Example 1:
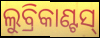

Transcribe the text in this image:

ଲୁବ୍ରିକାଣ୍ଟସ୍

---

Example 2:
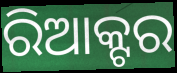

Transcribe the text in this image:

ରିଆକ୍ଟର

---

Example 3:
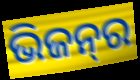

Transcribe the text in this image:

ଭିଜନ୍‌ର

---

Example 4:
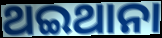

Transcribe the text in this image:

ଥଇଥାନା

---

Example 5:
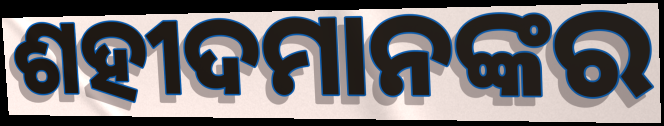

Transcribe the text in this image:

ଶହୀଦମାନଙ୍କର